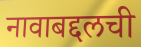
नावाबद्दलची